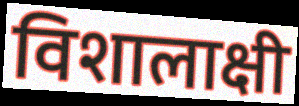
विशालाक्षी